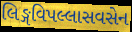
લિઙ્ગવિપલ્લાસવસેન